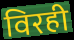
विरही